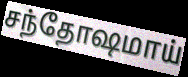
சந்தோஷமாய்